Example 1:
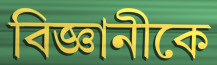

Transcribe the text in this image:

বিজ্ঞানীকে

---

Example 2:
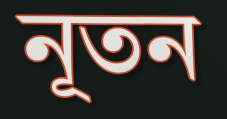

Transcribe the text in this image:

নূতন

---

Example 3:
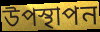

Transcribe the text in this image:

উপস্থাপন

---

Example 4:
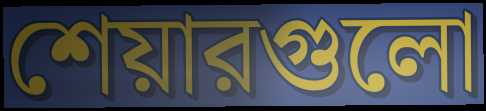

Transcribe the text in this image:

শেয়ারগুলো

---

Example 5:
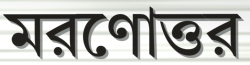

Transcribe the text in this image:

মরণোত্তর